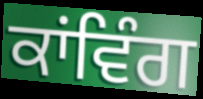
ਕਾਂਵਿੰਗ